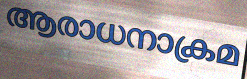
ആരാധനാക്രമ